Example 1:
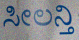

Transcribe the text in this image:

ಸೀಲನ್ತಿ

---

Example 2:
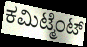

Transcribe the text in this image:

ಕಮಿಟ್ಮೆಂಟ್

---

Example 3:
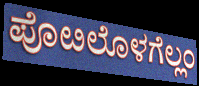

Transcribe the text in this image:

ಪೊೞಲೊಳಗೆಲ್ಲಂ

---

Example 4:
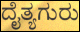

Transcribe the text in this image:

ದೈತ್ಯಗುರು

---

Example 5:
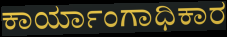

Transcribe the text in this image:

ಕಾರ್ಯಾಂಗಾಧಿಕಾರ